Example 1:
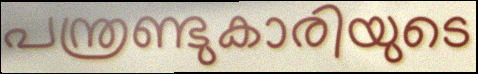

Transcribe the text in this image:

പന്ത്രണ്ടുകാരിയുടെ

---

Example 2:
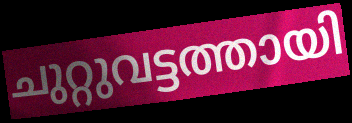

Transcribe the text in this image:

ചുറ്റുവട്ടത്തായി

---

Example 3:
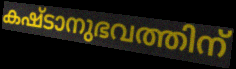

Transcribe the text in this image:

കഷ്ടാനുഭവത്തിന്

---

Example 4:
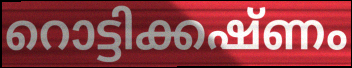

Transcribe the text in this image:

റൊട്ടിക്കഷ്ണം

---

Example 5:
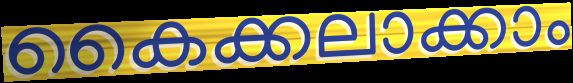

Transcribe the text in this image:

കൈക്കലാക്കാം